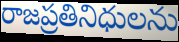
రాజప్రతినిధులను